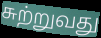
சுற்றுவது